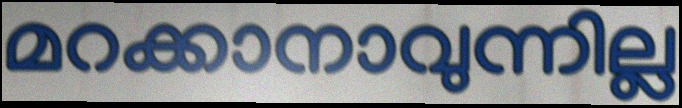
മറക്കാനാവുന്നില്ല